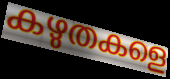
കഴുതകളെ